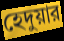
হেদুয়ার